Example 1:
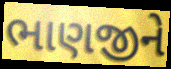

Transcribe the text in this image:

ભાણજીને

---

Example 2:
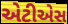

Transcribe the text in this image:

એટીએસ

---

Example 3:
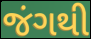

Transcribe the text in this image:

જંગથી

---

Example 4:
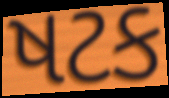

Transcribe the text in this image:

ષટક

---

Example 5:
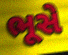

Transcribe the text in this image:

ભૂસે